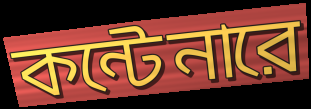
কন্টেনারে